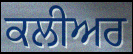
ਕਲੀਅਰ